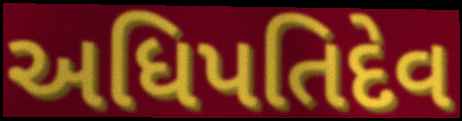
અધિપતિદેવ